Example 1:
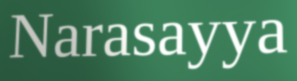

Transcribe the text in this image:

Narasayya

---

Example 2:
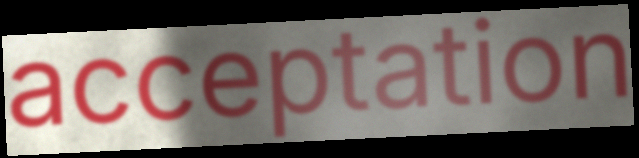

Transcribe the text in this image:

acceptation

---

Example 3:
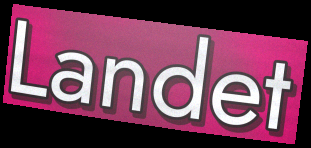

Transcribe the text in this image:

Landet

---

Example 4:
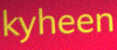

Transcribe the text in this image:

kyheen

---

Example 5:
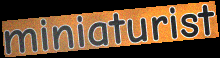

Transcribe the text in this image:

miniaturist